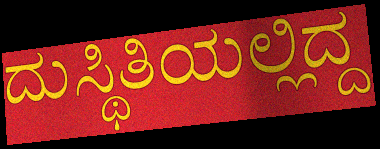
ದುಸ್ಥಿತಿಯಲ್ಲಿದ್ದ